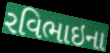
રવિભાઇના